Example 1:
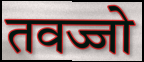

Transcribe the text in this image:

तवज्जो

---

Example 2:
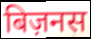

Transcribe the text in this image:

बिज़नस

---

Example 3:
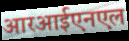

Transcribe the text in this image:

आरआईएनएल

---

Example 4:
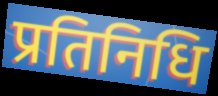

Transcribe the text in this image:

प्रतिनिधि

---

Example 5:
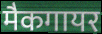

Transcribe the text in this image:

मैकगायर